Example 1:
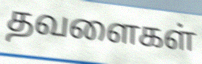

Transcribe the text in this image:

தவளைகள்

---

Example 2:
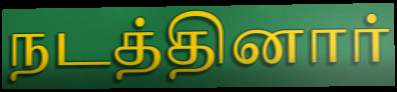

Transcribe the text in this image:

நடத்தினார்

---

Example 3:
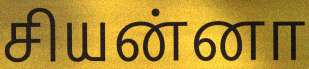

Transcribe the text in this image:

சியன்னா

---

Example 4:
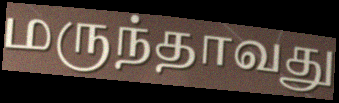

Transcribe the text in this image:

மருந்தாவது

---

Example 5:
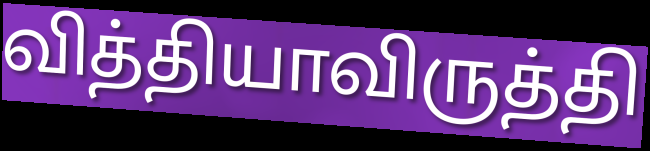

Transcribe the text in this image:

வித்தியாவிருத்தி